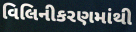
વિલિનીકરણમાંથી